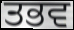
ਤਭਵ